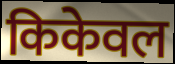
किकेवल